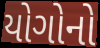
યોગોનો